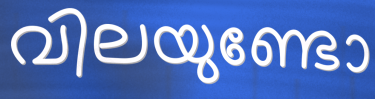
വിലയുണ്ടോ